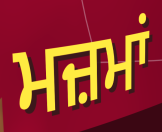
ਮਜ਼ਮਾਂ